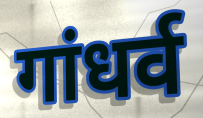
गांधर्व